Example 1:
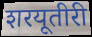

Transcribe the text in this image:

शरयूतीरी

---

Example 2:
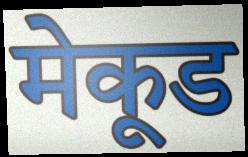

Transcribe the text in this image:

मेकूड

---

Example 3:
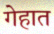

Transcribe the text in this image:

गेहात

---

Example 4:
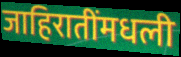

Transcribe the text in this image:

जाहिरातींमधली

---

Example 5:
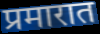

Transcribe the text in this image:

प्रमारात